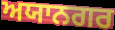
ਅਯਾਨਗਰ